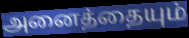
அனைத்தையும்